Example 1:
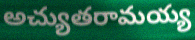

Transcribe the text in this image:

అచ్యుతరామయ్య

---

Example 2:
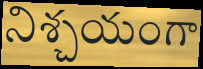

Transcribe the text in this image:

నిశ్చయంగా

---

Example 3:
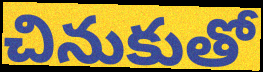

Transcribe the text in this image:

చినుకుతో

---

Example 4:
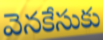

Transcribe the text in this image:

వెనకేసుకు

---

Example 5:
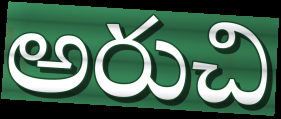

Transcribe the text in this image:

అరుచి